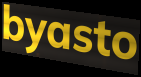
byasto